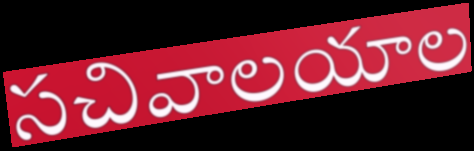
సచివాలయాల